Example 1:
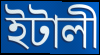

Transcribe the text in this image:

ইটালী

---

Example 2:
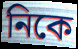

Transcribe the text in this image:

নিকে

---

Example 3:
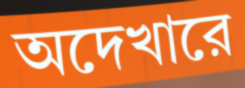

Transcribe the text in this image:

অদেখারে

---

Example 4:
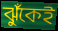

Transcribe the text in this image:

ঝুঁকেই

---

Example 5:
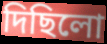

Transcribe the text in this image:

দিছিলো